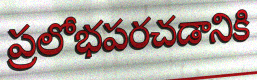
ప్రలోభపరచడానికి